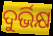
ଦୁର୍ଭିକ୍ଷ